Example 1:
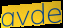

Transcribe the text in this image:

avde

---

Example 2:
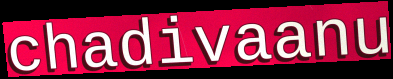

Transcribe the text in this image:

chadivaanu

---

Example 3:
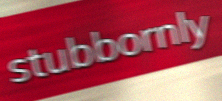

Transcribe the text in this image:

stubbornly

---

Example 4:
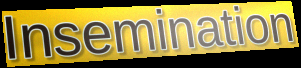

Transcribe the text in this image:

Insemination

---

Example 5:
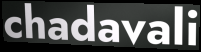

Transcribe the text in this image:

chadavali